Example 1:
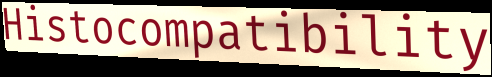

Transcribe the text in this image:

Histocompatibility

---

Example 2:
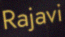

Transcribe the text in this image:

Rajavi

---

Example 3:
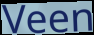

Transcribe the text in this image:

Veen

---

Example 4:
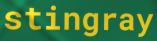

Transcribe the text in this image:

stingray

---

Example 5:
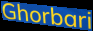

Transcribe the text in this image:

Ghorbari